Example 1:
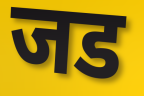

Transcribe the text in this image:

जड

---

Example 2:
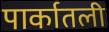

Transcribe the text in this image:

पार्कातली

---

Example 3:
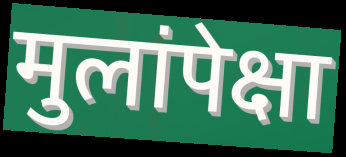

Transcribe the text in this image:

मुलांपेक्षा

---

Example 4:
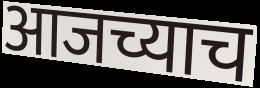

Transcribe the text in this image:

आजच्याच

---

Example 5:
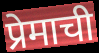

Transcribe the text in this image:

प्रेमाची